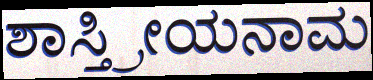
ಶಾಸ್ತ್ರೀಯನಾಮ